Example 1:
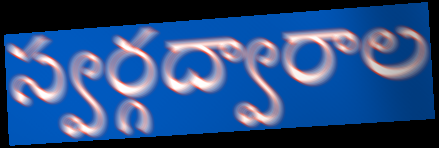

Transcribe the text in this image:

స్వర్గద్వారాల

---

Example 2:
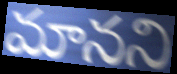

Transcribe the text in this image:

మానని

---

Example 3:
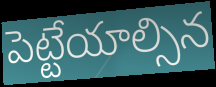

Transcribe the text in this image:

పెట్టేయాల్సిన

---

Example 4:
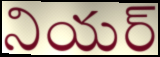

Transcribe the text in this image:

నియర్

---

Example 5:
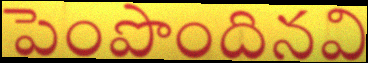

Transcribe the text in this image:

పెంపొందినవి